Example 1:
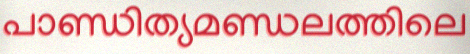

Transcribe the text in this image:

പാണ്ഡിത്യമണ്ഡലത്തിലെ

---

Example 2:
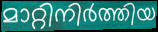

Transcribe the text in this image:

മാറ്റിനിർത്തിയ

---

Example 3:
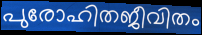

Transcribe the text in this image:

പുരോഹിതജീവിതം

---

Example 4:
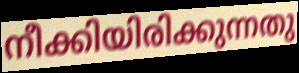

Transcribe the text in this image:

നീക്കിയിരിക്കുന്നതു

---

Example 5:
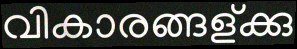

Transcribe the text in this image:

വികാരങ്ങള്ക്കു